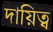
দায়িত্ব